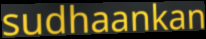
sudhaankan